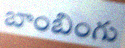
బాంబింగు